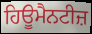
ਹਿਊਮੈਨਟੀਜ਼